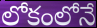
లోకంలోనే